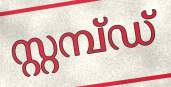
സ്റ്റമ്പ്ഡ്